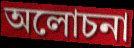
অলোচনা